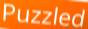
Puzzled